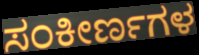
ಸಂಕೀರ್ಣಗಳ